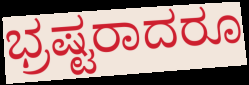
ಭ್ರಷ್ಟರಾದರೂ